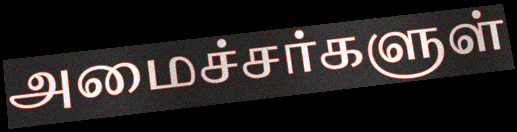
அமைச்சர்களுள்